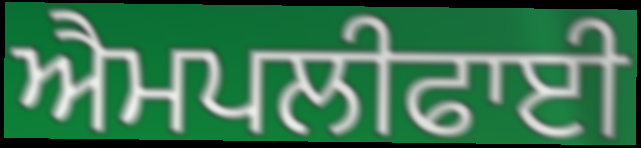
ਐਮਪਲੀਫਾਈ